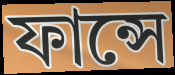
ফান্সে